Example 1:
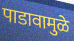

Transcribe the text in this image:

पाडावामुळे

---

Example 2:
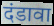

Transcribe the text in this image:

दंडावा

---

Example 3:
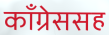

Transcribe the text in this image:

काँग्रेससह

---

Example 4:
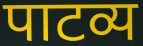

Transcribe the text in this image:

पाटव्य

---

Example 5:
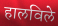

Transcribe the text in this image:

हालविले